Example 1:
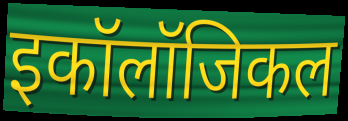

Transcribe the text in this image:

इकॉलॉजिकल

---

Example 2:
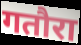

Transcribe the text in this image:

गतौरा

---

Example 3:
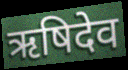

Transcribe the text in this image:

ऋषिदेव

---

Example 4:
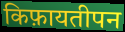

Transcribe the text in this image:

किफ़ायतीपन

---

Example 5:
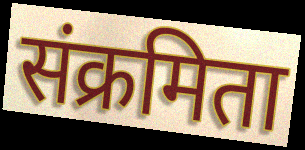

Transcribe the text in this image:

संक्रमिता